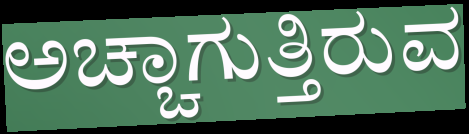
ಅಚ್ಚಾಗುತ್ತಿರುವ